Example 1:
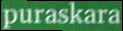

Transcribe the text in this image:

puraskara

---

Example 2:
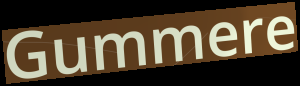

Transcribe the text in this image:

Gummere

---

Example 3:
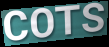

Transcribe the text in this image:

COTS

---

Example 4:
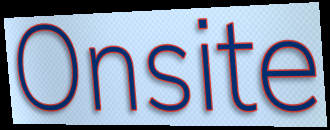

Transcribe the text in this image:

Onsite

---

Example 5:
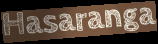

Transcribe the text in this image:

Hasaranga